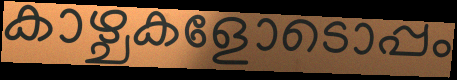
കാഴ്ചകളോടൊപ്പം